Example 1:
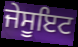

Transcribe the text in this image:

ਜੇਸੂਇਟ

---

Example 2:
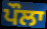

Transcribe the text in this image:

ਪੌਲਾ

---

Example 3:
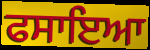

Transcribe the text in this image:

ਫਸਾਇਆ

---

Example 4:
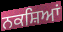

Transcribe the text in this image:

ਨਕਸ਼ਿਆਂ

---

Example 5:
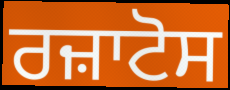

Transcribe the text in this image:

ਰਜ਼ਾਟੋਸ